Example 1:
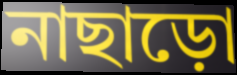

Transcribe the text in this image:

নাছাড়ো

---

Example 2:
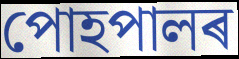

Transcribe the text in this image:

পোহপালৰ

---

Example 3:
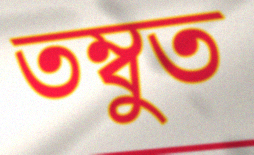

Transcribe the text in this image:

তম্বুত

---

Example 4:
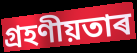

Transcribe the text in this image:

গ্ৰহণীয়তাৰ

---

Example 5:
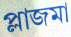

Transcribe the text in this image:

প্লাজমা